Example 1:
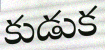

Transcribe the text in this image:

కుడుక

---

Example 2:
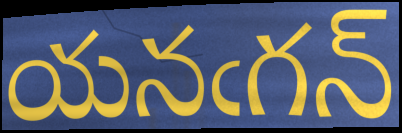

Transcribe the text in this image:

యనఁగన్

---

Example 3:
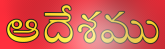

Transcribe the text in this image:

ఆదేశము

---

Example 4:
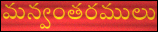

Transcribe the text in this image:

మన్వంతరములు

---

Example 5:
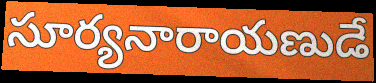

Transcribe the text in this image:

సూర్యనారాయణుడే